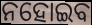
ନହୋଇବ